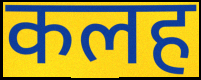
कलह